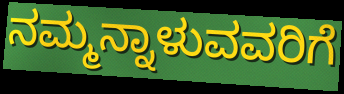
ನಮ್ಮನ್ನಾಳುವವರಿಗೆ